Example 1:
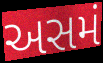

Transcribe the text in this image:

અસમં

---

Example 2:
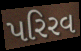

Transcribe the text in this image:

પરિરવ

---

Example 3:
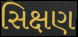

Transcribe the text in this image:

સિક્ષણ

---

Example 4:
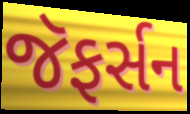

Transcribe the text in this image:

જૅફર્સન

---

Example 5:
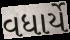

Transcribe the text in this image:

વધાર્યે